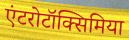
एंटरोटॉक्सिमिया